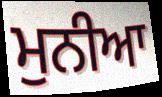
ਮੁਨੀਆ